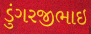
ડુંગરજીભાઇ